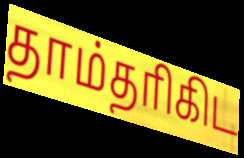
தாம்தரிகிட